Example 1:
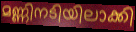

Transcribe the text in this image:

മണ്ണിനടിയിലാക്കി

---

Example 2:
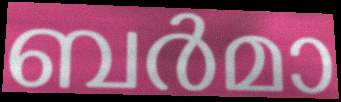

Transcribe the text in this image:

ബർമാ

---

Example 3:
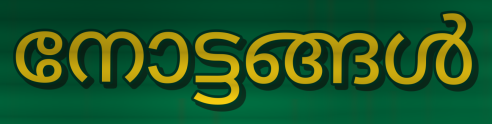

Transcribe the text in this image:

നോട്ടങ്ങൾ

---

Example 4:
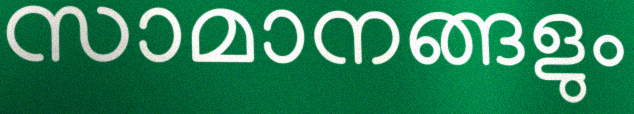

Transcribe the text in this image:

സാമാനങ്ങളും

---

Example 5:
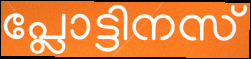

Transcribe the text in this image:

പ്ലോട്ടിനസ്